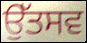
ਉੱਤਸਵ